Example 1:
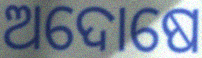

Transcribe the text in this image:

ଅଦୋଷେ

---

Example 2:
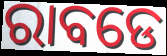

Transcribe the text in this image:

ରାବଡେ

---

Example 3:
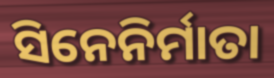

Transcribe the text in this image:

ସିନେନିର୍ମାତା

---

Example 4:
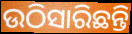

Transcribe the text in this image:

ଉଠିସାରିଛନ୍ତି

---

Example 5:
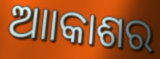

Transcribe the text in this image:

ଆାକାଶର